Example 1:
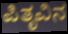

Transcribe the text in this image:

ಪಿತೃವಿನ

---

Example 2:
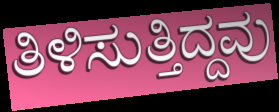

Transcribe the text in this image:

ತಿಳಿಸುತ್ತಿದ್ದವು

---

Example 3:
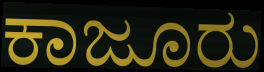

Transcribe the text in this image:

ಕಾಜೂರು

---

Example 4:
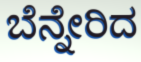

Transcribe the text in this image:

ಬೆನ್ನೇರಿದ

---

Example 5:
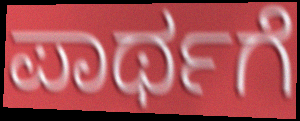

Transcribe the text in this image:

ಪಾರ್ಥಗೆ